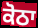
ਕੋਠਾ